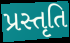
પ્રસ્તૃતિ